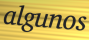
algunos